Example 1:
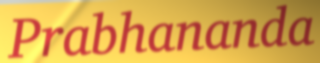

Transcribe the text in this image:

Prabhananda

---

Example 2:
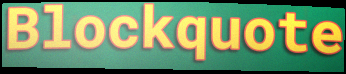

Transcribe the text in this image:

Blockquote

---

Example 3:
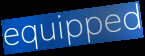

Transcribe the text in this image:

equipped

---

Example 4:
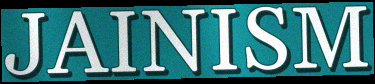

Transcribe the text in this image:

JAINISM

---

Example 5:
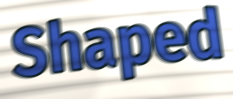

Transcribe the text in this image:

Shaped